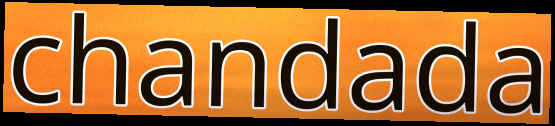
chandada